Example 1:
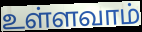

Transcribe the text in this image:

உள்ளவாம்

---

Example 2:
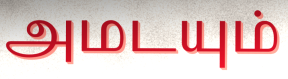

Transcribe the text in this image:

அமடயும்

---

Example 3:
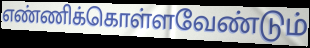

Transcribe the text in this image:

எண்ணிக்கொள்ளவேண்டும்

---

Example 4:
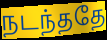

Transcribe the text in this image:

நடந்ததே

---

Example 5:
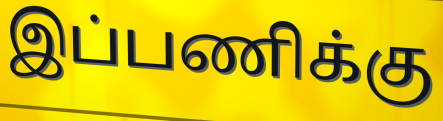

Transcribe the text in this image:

இப்பணிக்கு